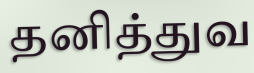
தனித்துவ